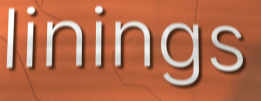
linings